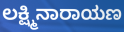
ಲಕ್ಷ್ಮಿನಾರಾಯಣ